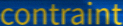
contraint